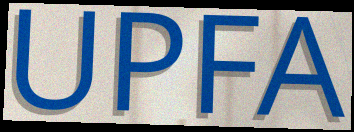
UPFA